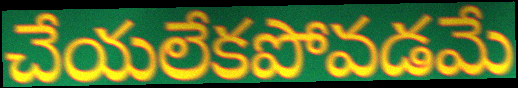
చేయలేకపోవడమే